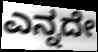
ಎನ್ನದೇ